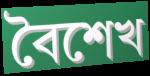
বৈশেখ